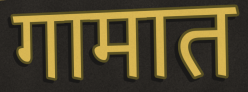
गामात